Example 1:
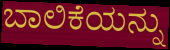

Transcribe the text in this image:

ಬಾಲಿಕೆಯನ್ನು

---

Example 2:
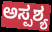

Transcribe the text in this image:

ಅಸ್ಪಶ್ಯ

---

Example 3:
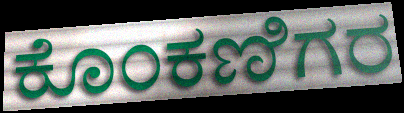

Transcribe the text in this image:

ಕೊಂಕಣಿಗರ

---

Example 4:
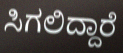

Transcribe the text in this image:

ಸಿಗಲಿದ್ದಾರೆ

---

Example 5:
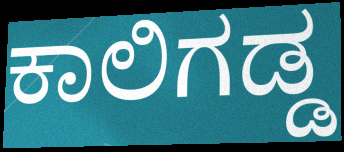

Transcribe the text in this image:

ಕಾಲಿಗಡ್ಡ